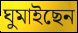
ঘুমাইছেন